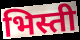
भिस्ती